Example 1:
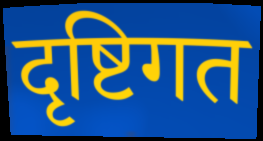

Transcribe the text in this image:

दृष्टिगत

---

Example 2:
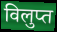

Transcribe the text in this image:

विलुप्त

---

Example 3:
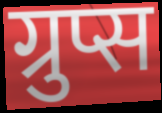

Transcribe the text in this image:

ग्रुप्स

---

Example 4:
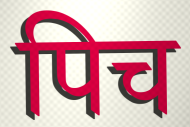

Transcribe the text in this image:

पिच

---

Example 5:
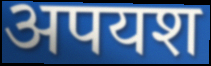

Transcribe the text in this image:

अपयश